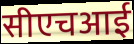
सीएचआई